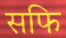
सफि